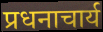
प्रधनाचार्य